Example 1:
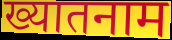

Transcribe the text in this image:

ख्यातनाम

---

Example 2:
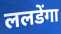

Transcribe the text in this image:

ललडेंगा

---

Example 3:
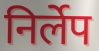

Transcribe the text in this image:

निर्लेप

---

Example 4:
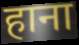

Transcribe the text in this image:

हाना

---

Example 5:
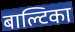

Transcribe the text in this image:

बाल्टिका